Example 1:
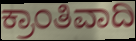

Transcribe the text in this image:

ಕ್ರಾಂತಿವಾದಿ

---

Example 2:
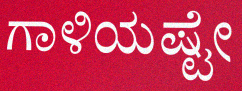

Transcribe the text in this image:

ಗಾಳಿಯಷ್ಟೇ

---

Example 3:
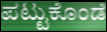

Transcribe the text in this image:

ಪಟ್ಟುಕೊಂಡೆ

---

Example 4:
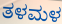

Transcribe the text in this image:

ತಳಮಳ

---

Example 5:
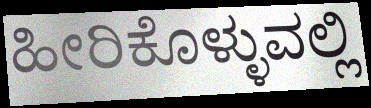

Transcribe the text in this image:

ಹೀರಿಕೊಳ್ಳುವಲ್ಲಿ